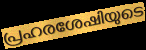
പ്രഹരശേഷിയുടെ